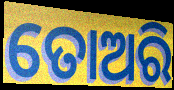
ତୋଅରି